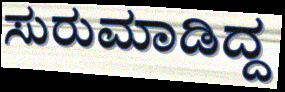
ಸುರುಮಾಡಿದ್ದ